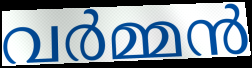
വർമ്മൻ